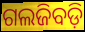
ଗଲଜିବଡ଼ି